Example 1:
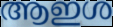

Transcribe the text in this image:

ആഇശ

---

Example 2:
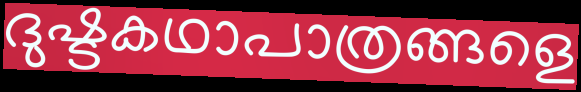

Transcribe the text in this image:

ദുഷ്ടകഥാപാത്രങ്ങളെ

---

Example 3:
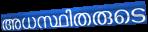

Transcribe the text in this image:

അധസ്ഥിതരുടെ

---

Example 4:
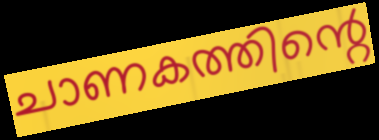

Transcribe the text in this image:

ചാണകത്തിന്റെ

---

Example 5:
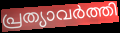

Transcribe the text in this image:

പ്രത്യാവർത്തി